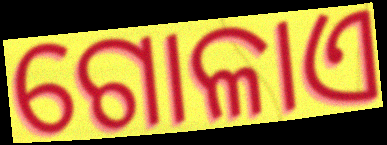
ଗୋଳାଏ